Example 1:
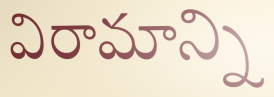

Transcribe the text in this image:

విరామాన్ని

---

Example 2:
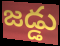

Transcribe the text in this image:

జడ్డు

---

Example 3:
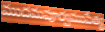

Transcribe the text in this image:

ముదమపూర్వముపేత్య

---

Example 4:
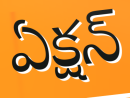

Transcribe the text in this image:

ఏక్షన్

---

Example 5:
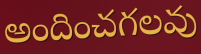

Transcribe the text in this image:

అందించగలవు